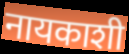
नायकाशी